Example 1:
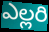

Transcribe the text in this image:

ఎల్లరి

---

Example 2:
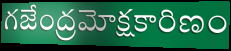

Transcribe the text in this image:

గజేంద్రమోక్షకారిణం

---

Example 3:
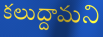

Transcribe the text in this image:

కలుద్దామని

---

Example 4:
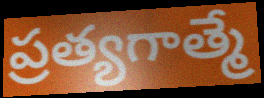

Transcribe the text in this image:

ప్రత్యగాత్మే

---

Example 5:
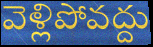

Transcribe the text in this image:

వెళ్లిపోవద్దు